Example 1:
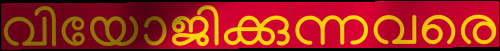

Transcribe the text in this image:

വിയോജിക്കുന്നവരെ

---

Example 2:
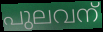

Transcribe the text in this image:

പുലവന്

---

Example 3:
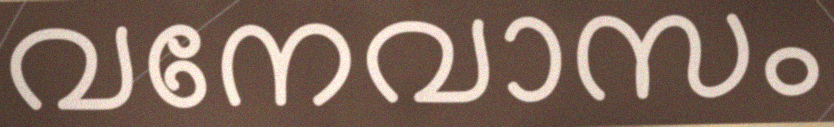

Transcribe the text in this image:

വനേവാസം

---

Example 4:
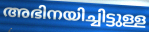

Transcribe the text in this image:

അഭിനയിച്ചിട്ടുള്ള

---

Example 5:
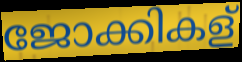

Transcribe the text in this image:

ജോക്കികള്